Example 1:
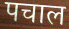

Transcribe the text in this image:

पचाल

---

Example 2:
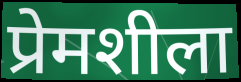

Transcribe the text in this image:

प्रेमशीला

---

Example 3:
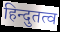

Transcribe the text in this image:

हिन्दुतत्व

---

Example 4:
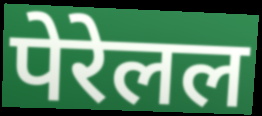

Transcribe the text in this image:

पेरेलल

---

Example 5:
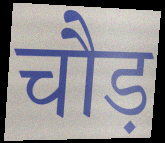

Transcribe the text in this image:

चौड़